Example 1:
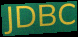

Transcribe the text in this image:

JDBC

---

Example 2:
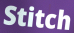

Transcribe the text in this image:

Stitch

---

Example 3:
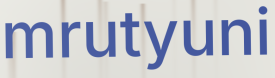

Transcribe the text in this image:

mrutyuni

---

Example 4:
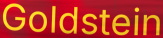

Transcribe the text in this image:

Goldstein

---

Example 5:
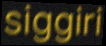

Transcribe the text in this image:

siggiri